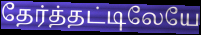
தேர்த்தட்டிலேயே